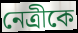
নেত্রীকে